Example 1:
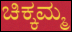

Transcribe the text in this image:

ಚಿಕ್ಕಮ್ಮ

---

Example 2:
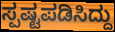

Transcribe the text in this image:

ಸ್ಪಷ್ಟಪಡಿಸಿದ್ದು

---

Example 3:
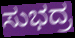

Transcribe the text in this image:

ಸುಭದ್ರ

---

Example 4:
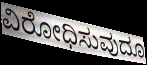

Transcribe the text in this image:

ವಿರೋಧಿಸುವುದೂ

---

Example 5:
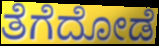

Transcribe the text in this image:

ತೆಗೆದೋಡೆ